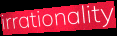
irrationality